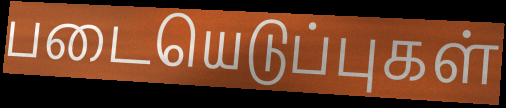
படையெடுப்புகள்